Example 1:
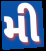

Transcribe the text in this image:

મી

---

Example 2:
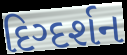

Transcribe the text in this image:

દિગ્દર્શન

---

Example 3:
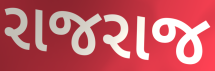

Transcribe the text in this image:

રાજરાજ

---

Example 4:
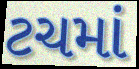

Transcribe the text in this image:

ટચમાં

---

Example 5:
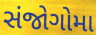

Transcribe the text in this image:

સંજોગોમા